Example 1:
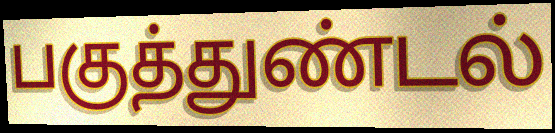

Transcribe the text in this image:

பகுத்துண்டல்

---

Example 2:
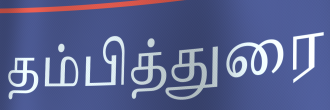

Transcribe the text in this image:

தம்பித்துரை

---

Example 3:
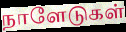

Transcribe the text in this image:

நாளேடுகள்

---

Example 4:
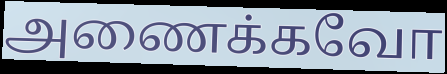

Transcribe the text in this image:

அணைக்கவோ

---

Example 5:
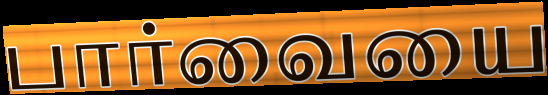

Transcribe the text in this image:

பார்வையை